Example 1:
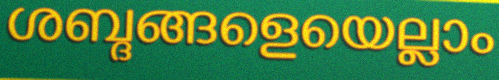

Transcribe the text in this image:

ശബ്ദങ്ങളെയെല്ലാം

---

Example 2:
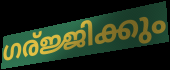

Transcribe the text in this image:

ഗര്ജ്ജിക്കും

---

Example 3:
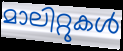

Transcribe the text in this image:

മാലിറ്റുകൾ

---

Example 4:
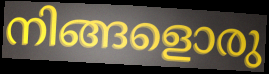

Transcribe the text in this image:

നിങ്ങളൊരു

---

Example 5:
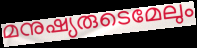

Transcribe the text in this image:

മനുഷ്യരുടെമേലും